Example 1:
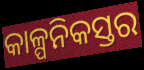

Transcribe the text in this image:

କାଳ୍ପନିକସ୍ତର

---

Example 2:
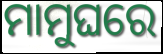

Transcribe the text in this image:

ମାମୁଘରେ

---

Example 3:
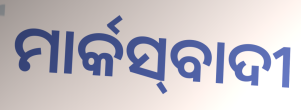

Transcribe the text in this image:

ମାର୍କସ୍‍ବାଦୀ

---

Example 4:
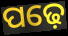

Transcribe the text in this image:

ପଢ଼େ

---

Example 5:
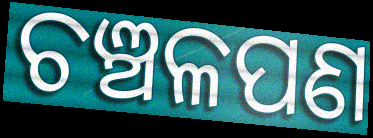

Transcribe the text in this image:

ଚଞ୍ଚଳପଣ